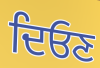
ਦਿਓਣ